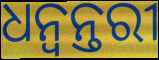
ଧନ୍ବନ୍ତରୀ